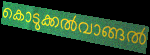
കൊടുക്കൽവാങ്ങൽ